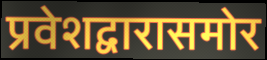
प्रवेशद्वारासमोर